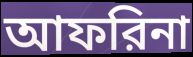
আফরিনা